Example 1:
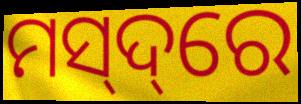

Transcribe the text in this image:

ମସ୍‌ଦ୍‌ରେ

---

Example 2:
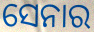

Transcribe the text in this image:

ସେନାର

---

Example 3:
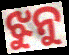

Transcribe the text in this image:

ଝୁନୁ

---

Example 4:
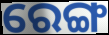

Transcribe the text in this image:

ରେଙ୍ଗ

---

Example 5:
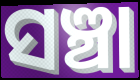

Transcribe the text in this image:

ସଞ୍ଚା